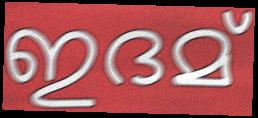
ഇദമ്